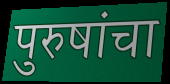
पुरुषांचा